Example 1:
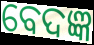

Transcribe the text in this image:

ବେଦଜ୍ଞ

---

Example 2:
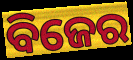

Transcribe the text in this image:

ବିଜେର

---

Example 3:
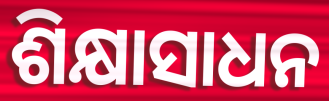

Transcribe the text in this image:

ଶିକ୍ଷାସାଧନ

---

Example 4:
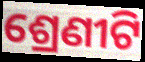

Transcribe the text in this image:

ଶ୍ରେଣୀଟି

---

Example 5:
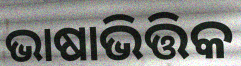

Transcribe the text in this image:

ଭାଷାଭିତ୍ତିକ